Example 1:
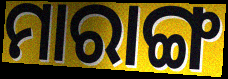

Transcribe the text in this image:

ମାରାଙ୍ଗ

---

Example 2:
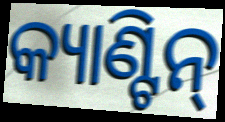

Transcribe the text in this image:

କ୍ୟାଣ୍ଟିନ୍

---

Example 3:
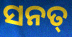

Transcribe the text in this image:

ସନତ୍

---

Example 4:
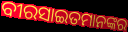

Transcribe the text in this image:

ବୀରସାଇତମାନଙ୍କର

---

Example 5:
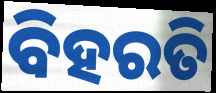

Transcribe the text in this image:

ବିହରତି